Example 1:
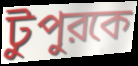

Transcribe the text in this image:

টুপুরকে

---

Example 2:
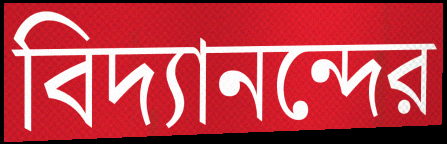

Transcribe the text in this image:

বিদ্যানন্দের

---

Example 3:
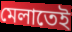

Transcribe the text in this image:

মেলাতেই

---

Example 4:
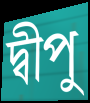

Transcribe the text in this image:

দ্বীপু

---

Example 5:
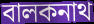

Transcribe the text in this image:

বালকনাথ